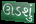
ઊડશું